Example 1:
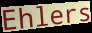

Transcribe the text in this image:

Ehlers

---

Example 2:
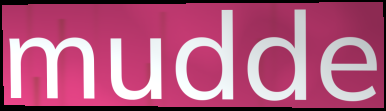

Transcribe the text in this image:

mudde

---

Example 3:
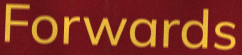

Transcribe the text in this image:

Forwards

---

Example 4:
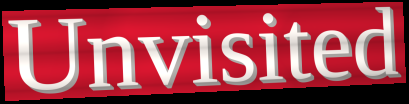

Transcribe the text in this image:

Unvisited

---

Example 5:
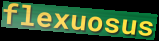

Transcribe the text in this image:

flexuosus